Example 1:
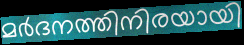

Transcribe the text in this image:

മർദനത്തിനിരയായി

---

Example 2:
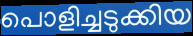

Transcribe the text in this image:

പൊളിച്ചടുക്കിയ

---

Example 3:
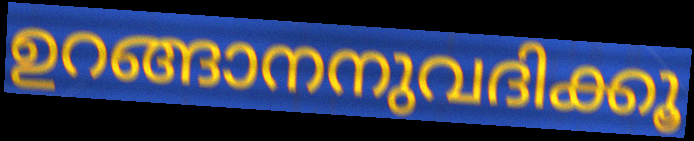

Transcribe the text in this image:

ഉറങ്ങാനനുവദിക്കൂ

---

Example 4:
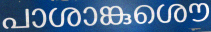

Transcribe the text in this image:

പാശാങ്കുശൌ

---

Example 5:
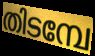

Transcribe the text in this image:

തിടമ്പേ